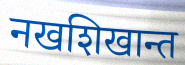
नखशिखान्त